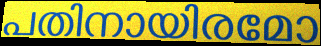
പതിനായിരമോ